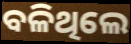
ବଳିଥିଲେ